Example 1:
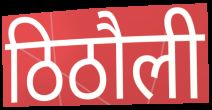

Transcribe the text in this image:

ठिठौली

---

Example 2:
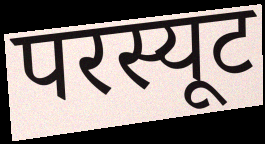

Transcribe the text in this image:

परस्यूट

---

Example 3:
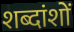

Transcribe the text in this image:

शब्दांशों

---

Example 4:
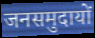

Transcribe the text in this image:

जनसमुदायों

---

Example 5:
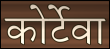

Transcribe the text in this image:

कोर्टेवा